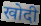
खोदी